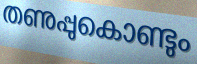
തണുപ്പുകൊണ്ടും